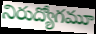
నిరుద్యోగమూ